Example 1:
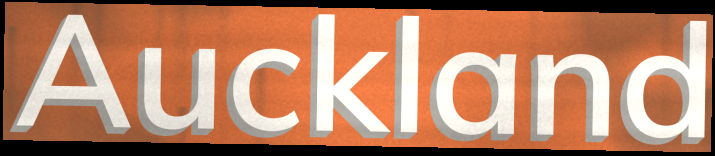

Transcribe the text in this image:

Auckland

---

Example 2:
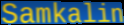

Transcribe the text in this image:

Samkalin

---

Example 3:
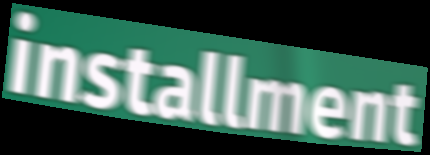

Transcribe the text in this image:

installment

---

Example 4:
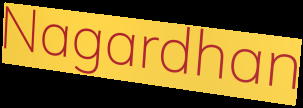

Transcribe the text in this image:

Nagardhan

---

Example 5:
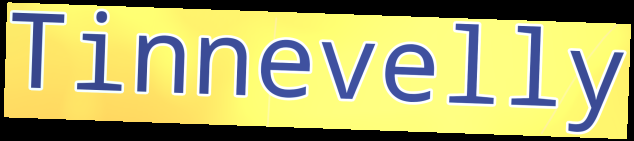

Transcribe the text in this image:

Tinnevelly